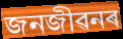
জনজীৱনৰ